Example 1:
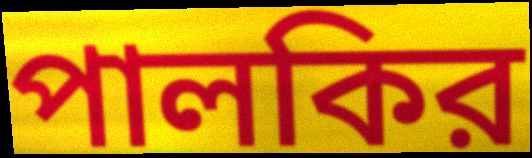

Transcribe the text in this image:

পালকির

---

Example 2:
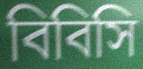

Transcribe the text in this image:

বিবিসি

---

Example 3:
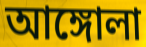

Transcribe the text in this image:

আঙ্গোলা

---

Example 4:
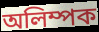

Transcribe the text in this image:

অলিম্পক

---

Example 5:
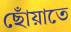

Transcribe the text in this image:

ছোঁয়াতে